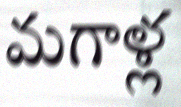
మగాళ్ల